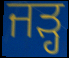
ਜੜ੍ਹ